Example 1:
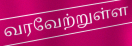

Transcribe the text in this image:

வரவேற்றுள்ள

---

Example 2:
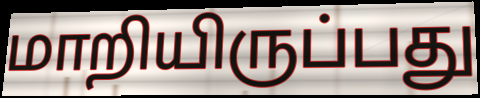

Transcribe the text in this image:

மாறியிருப்பது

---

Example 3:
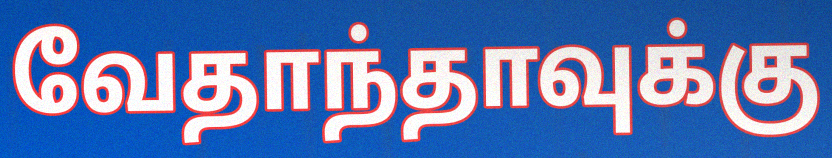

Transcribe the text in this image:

வேதாந்தாவுக்கு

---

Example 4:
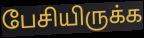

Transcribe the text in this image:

பேசியிருக்க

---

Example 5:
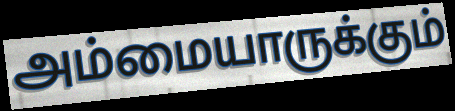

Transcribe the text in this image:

அம்மையாருக்கும்